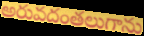
అరువదంతలుగాను